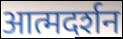
आत्मदर्शन